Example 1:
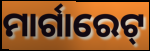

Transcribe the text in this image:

ମାର୍ଗାରେଟ୍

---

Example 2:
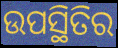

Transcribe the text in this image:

ଉପସ୍ଥିତିର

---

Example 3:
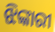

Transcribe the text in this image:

ଝିଙ୍କାରୀ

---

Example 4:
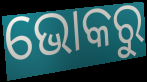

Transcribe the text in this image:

ଭୋକରୁ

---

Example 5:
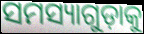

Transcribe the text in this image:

ସମସ୍ୟାଗୁଡ଼ାକୁ